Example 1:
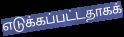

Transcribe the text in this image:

எடுக்கப்பட்டதாகக்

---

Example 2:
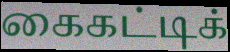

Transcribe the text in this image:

கைகட்டிக்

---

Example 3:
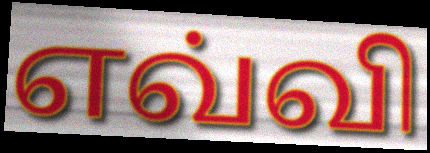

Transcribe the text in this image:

எவ்வி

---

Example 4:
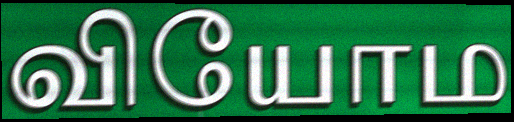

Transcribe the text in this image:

வியோம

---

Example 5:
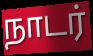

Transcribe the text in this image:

நாடர்